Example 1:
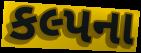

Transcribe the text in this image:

કલ્પના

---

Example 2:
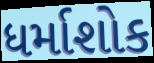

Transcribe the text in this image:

ધર્માશોક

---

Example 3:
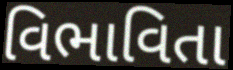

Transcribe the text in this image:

વિભાવિતા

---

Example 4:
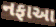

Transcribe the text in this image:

નફાઆ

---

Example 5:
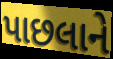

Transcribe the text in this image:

પાછલાને